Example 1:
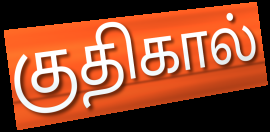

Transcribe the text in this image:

குதிகால்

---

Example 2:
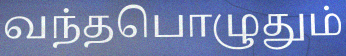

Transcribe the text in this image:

வந்தபொழுதும்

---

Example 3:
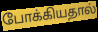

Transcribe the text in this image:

போக்கியதால்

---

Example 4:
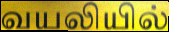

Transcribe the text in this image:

வயலியில்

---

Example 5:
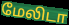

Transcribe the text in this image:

மேலிடா